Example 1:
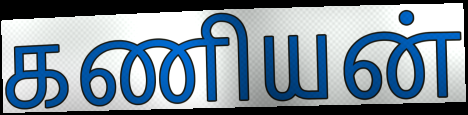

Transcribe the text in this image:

கணியன்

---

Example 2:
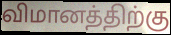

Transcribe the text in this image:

விமானத்திற்கு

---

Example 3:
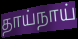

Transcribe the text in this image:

தாய்நாய்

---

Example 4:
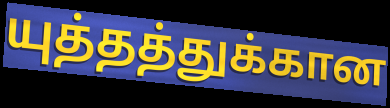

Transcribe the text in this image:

யுத்தத்துக்கான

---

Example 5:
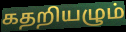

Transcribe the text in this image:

கதறியழும்